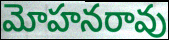
మోహనరావు